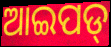
ଆଇପଡ୍